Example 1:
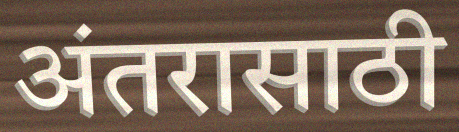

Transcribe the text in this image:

अंतरासाठी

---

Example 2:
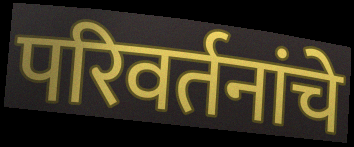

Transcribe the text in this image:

परिवर्तनांचे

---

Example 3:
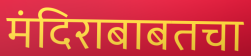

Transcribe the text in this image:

मंदिराबाबतचा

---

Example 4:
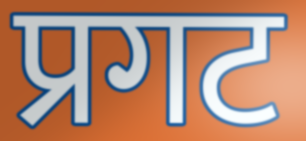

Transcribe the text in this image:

प्रगट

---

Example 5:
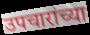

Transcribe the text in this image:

उपचारांच्या